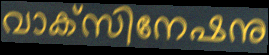
വാക്‌സിനേഷനു